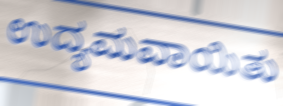
ಉದ್ಯಮವಾಯಿತು